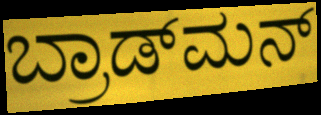
ಬ್ರಾಡ್‌ಮನ್